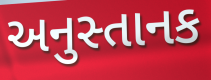
અનુસ્તાનક